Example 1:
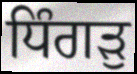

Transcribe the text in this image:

ਧਿੰਗੜੁ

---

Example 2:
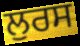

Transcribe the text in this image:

ਲੁਰਸ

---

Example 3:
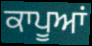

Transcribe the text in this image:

ਕਾਪੂਆਂ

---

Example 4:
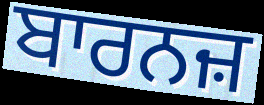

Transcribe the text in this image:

ਬਾਰਨਜ਼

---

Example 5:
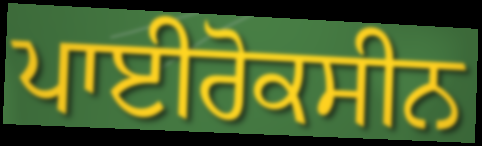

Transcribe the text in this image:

ਪਾਈਰੋਕਸੀਨ